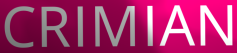
CRIMIAN